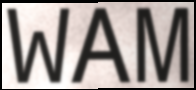
WAM